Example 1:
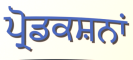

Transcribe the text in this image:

ਪ੍ਰੋਡਕਸ਼ਨਾਂ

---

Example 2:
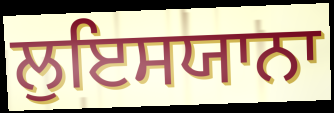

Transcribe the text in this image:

ਲੁਇਸਯਾਨਾ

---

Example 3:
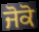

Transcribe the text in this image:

ਜੋਕੋ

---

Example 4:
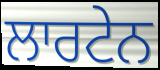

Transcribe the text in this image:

ਲਾਰਟੇਨ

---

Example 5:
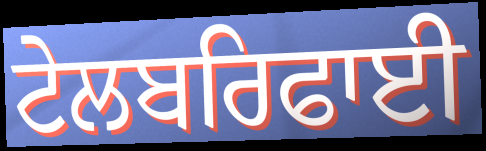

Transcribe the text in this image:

ਟੇਲਬਰਿਫਾਈ